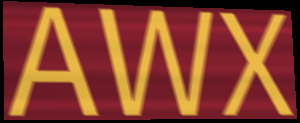
AWX